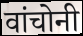
वांचोनी